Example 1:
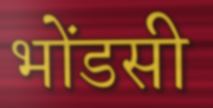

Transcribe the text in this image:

भोंडसी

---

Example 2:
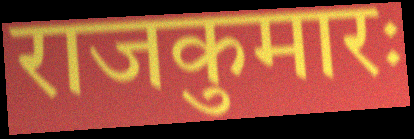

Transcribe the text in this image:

राजकुमारः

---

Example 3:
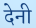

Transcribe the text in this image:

देनी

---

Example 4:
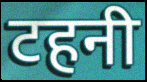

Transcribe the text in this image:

टहनी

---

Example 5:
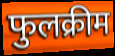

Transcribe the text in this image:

फुलक्रीम